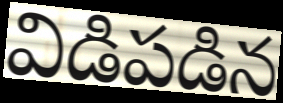
విడిపడిన